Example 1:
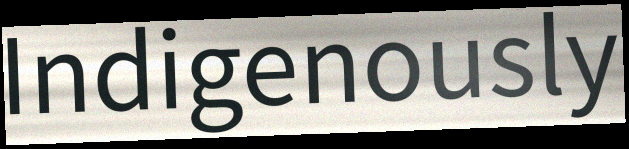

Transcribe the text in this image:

Indigenously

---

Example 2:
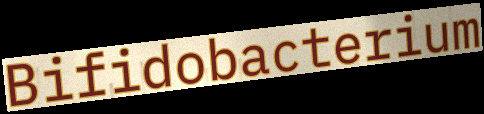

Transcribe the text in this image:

Bifidobacterium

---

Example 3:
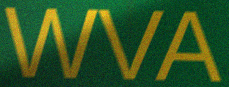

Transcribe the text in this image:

WVA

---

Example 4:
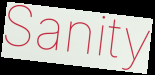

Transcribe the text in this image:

Sanity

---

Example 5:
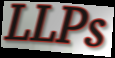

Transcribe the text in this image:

LLPs